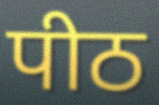
पीठ